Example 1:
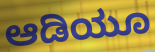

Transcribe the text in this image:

ಆಡಿಯೂ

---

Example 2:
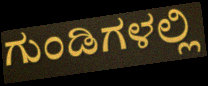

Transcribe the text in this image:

ಗುಂಡಿಗಳಲ್ಲಿ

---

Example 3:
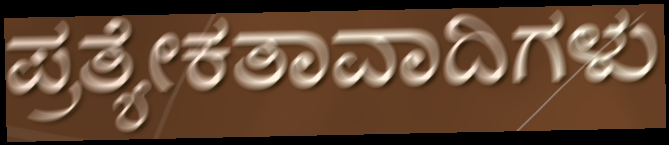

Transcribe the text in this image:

ಪ್ರತ್ಯೇಕತಾವಾದಿಗಳು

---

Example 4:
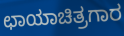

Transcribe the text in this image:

ಛಾಯಾಚಿತ್ರಗಾರ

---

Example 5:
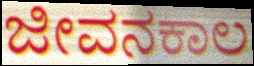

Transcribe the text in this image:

ಜೀವನಕಾಲ